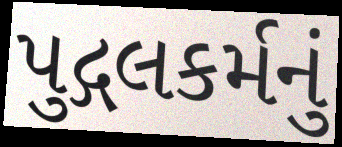
પુદ્ગલકર્મનું